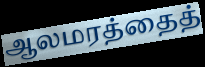
ஆலமரத்தைத்